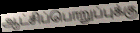
ஆட்சிப்பொறுப்புக்கு